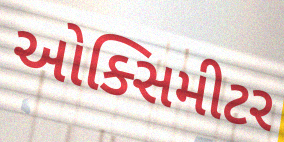
ઓક્સિમીટર